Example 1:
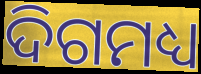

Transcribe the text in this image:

ଦିଗମଧ୍ୟ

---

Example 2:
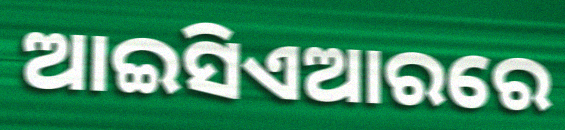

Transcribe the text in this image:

ଆଇସିଏଆରରେ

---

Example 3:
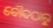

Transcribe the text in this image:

ବୌଦଠାରୁ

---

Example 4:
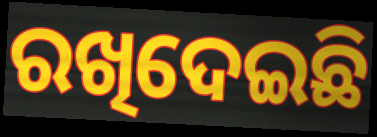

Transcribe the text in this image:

ରଖିଦେଇଛି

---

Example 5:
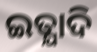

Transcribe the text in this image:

ଇତ୍ଯାଦି